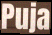
Puja